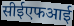
सीईएफआई